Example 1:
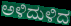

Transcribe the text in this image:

ಅಳಿದುಳಿದ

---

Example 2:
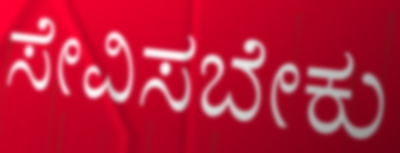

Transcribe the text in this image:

ಸೇವಿಸಬೇಕು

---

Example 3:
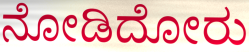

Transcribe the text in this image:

ನೋಡಿದೋರು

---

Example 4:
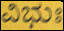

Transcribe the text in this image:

ವಿಭುಃ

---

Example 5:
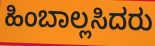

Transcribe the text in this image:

ಹಿಂಬಾಲ್ಲಸಿದರು